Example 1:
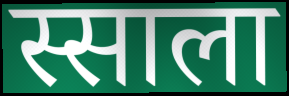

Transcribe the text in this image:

स्साला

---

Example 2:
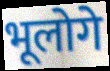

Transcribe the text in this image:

भूलोगे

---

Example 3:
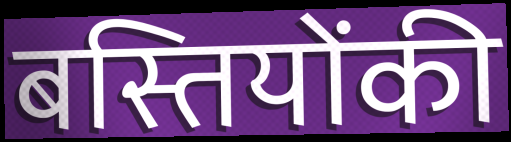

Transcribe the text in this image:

बस्तियोंकी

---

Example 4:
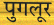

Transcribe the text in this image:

पुगलूर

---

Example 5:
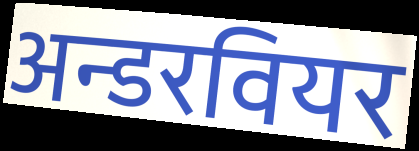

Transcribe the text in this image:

अन्डरवियर